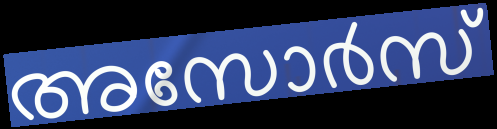
അസോർസ്